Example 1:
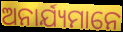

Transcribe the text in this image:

ଅନାର୍ଯ୍ୟମାନେ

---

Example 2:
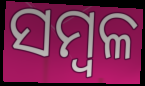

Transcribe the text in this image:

ସମ୍ବଳ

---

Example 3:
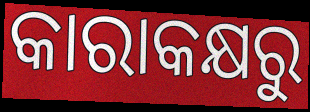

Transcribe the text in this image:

କାରାକକ୍ଷରୁ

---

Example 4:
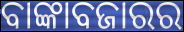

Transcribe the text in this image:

ବାଙ୍କାବଜାରର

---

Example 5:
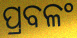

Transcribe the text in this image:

ପ୍ରବଳଂ